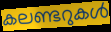
കലണ്ടറുകൾ